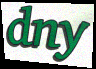
dny